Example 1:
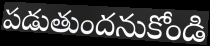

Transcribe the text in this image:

పడుతుందనుకోండి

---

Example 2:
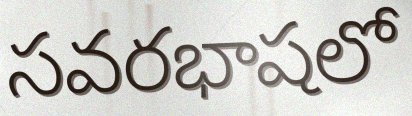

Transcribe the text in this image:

సవరభాషలో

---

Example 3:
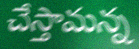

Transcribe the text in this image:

చేస్తామన్న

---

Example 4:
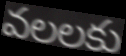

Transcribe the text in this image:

వలలకు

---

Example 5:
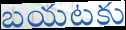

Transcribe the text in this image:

బయటకు